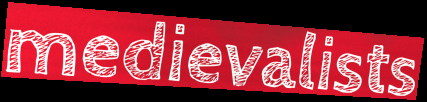
medievalists